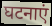
घटनाएं